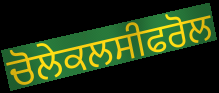
ਚੋਲੇਕਲਸੀਫਰੋਲ